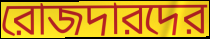
রোজদারদের